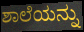
ಶಾಲೆಯನ್ನು